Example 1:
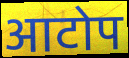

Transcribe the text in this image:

आटोप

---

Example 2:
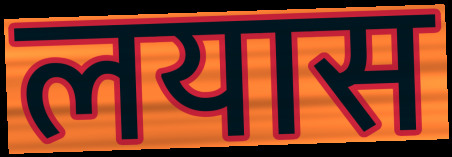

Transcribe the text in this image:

लयास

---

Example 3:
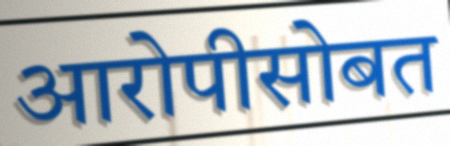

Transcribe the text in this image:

आरोपीसोबत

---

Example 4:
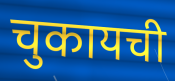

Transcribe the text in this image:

चुकायची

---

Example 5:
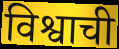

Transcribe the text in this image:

विश्वाची